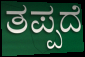
ತಪ್ಪದೆ